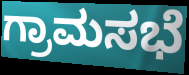
ಗ್ರಾಮಸಭೆ